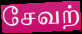
சேவற்